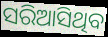
ସରିଆସିଥିବ